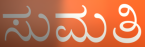
ಸುಮತಿ